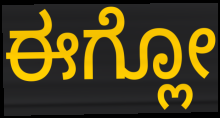
ಈಗ್ಲೋ